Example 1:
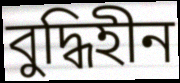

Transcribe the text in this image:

বুদ্ধিহীন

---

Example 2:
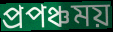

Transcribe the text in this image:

প্রপঞ্চময়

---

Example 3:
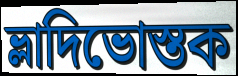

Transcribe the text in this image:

ভ্লাদিভোস্তক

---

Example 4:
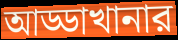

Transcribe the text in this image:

আড্ডাখানার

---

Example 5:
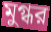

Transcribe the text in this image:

মুগ্ধর